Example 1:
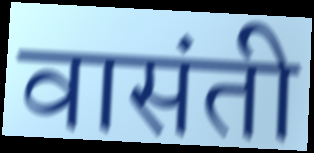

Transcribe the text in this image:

वासंती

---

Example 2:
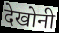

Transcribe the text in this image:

देखोनी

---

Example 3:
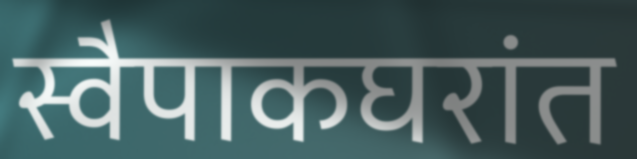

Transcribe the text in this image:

स्वैपाकघरांत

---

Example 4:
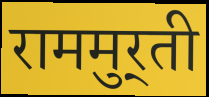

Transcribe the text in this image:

राममुर्ती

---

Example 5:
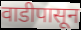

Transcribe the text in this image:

वाडीपासून